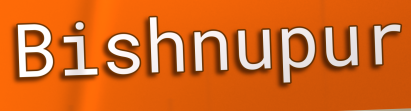
Bishnupur